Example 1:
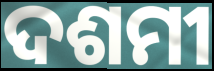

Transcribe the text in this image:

ଦଶମୀ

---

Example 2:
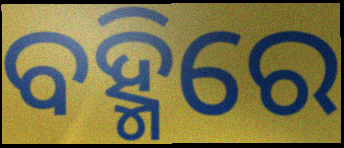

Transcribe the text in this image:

ବହ୍ମିରେ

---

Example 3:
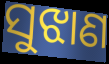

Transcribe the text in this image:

ସୁଝାଣ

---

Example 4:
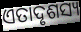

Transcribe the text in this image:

ଏତାଦୃଶସ୍ୟ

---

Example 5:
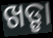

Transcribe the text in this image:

ଖଡ୍ଡା